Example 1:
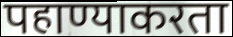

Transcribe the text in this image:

पहाण्याकरता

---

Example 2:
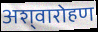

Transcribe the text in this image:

अश्वारोहण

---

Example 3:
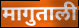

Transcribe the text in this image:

मागुताली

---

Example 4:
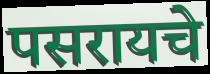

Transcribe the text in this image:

पसरायचे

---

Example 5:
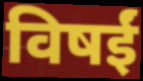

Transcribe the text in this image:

विषईं